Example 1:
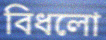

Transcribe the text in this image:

বিধলো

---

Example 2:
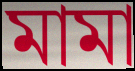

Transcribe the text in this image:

মামা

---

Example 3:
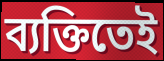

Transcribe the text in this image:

ব্যক্তিতেই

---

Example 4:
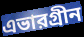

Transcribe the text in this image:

এভারগ্রীন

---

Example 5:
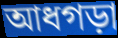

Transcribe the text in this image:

আধগড়া